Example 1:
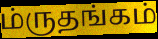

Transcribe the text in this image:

ம்ருதங்கம்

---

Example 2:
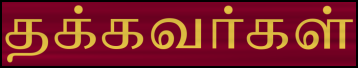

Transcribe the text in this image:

தக்கவர்கள்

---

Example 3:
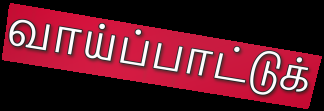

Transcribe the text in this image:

வாய்ப்பாட்டுக்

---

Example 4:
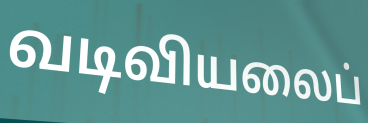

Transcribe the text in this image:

வடிவியலைப்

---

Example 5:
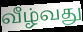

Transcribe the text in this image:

வீழ்வது